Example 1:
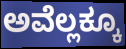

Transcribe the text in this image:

ಅವೆಲ್ಲಕ್ಕೂ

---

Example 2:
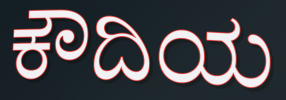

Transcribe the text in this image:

ಕೌದಿಯ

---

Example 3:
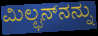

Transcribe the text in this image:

ಮಿಲ್ಟನ್‌ನನ್ನು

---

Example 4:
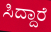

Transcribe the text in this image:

ಸಿದ್ದಾರೆ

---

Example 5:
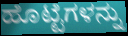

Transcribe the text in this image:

ಹೊಟ್ಟೆಗಳನ್ನು